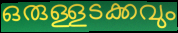
ഒരുള്ളടക്കവും